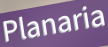
Planaria